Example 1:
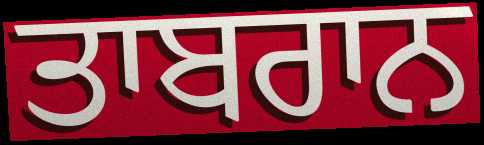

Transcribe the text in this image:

ਤਾਬਰਾਨ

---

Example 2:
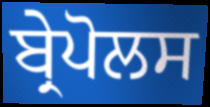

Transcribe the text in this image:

ਬ੍ਰੇਪੋਲਸ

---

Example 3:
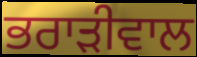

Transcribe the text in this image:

ਭਰਾੜੀਵਾਲ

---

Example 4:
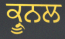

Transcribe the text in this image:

ਕ੍ਰੂਨਲ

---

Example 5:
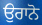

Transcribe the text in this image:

ਉਰਾਨੋ